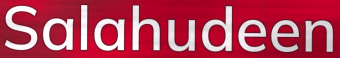
Salahudeen